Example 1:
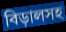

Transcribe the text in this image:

বিড়ালসহ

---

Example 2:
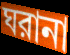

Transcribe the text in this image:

ঘরানা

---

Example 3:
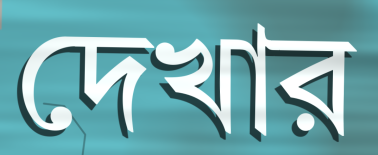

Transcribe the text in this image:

দেখার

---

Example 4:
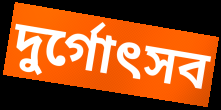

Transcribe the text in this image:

দুর্গোৎসব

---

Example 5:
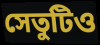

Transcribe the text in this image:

সেতুটিও